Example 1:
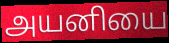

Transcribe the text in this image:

அயனியை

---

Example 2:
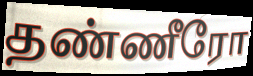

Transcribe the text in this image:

தண்ணீரோ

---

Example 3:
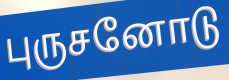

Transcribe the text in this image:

புருசனோடு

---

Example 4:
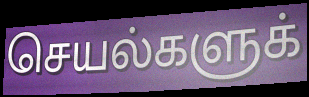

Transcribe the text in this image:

செயல்களுக்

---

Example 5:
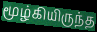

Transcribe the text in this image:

மூழ்கியிருந்த